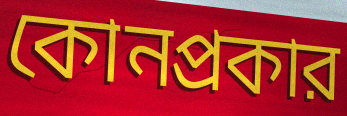
কোনপ্রকার